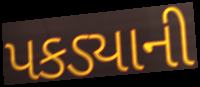
પકડ્યાની